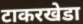
टाकरखेडा